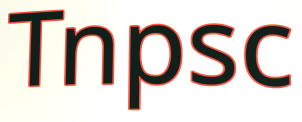
Tnpsc